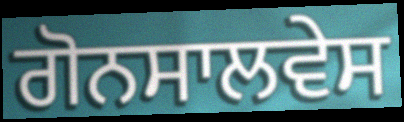
ਗੋਨਸਾਲਵੇਸ